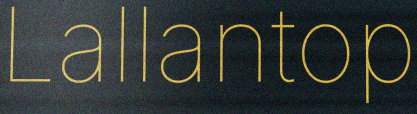
Lallantop